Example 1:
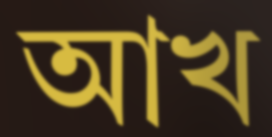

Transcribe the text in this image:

আখ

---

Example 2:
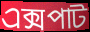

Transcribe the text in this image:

এক্সপাট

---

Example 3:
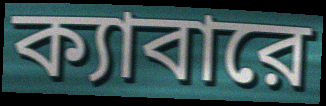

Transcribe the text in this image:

ক্যাবারে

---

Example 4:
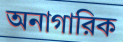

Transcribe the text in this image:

অনাগারিক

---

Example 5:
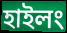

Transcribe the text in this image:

হাইলং